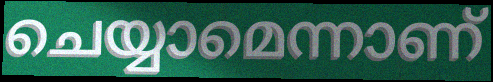
ചെയ്യാമെന്നാണ്